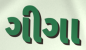
ગીગા